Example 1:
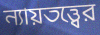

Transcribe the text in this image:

ন্যায়তত্ত্বের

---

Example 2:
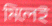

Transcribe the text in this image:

মিলেই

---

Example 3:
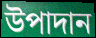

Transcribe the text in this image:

উপাদান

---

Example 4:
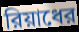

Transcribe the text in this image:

রিয়াধের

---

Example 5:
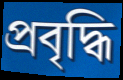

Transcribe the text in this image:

প্রবৃদ্ধি